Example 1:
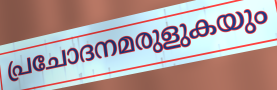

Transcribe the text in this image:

പ്രചോദനമരുളുകയും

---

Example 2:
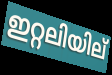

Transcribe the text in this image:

ഇറ്റലിയില്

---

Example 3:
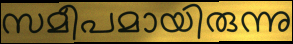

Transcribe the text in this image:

സമീപമായിരുന്നു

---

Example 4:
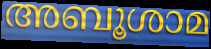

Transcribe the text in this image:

അബൂശാമ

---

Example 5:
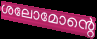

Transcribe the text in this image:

ശലോമോന്റെ